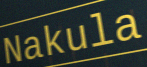
Nakula